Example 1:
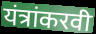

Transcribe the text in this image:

यंत्रांकरवी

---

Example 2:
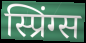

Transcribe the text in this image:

स्प्रिंग्स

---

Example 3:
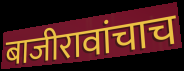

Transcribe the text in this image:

बाजीरावांचाच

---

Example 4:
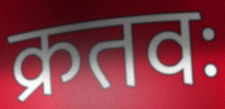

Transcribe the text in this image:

क्रतवः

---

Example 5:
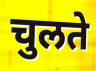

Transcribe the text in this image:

चुलते